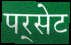
पर्सेट